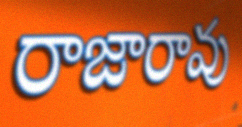
రాజారావు